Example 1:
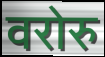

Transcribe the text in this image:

वरोरु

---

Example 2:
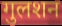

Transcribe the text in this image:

गुलशन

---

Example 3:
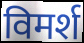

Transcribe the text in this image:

विमर्श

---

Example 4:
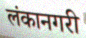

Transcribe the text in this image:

लंकानगरी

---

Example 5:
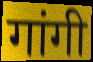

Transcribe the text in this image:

गांगी